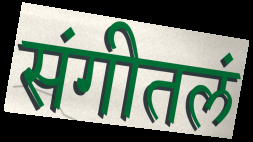
संगीतलं